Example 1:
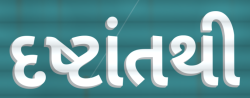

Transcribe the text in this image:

દષ્ટાંતથી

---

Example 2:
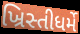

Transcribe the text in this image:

ખ્રિસ્તીધર્મે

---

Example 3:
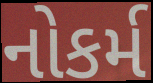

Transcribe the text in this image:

નોકર્મ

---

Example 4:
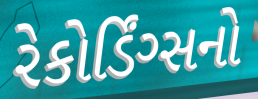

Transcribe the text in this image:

રેકોર્ડિંગ્સનો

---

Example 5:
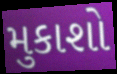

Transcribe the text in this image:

મુકાશો